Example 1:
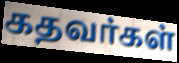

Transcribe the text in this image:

கதவர்கள்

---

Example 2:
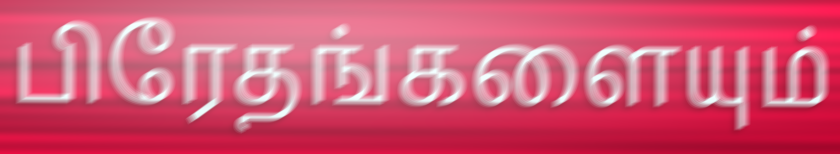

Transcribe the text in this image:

பிரேதங்களையும்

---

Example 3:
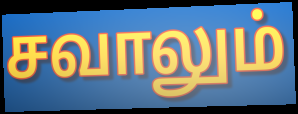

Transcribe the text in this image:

சவாலும்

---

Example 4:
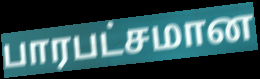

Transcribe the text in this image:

பாரபட்சமான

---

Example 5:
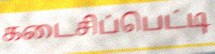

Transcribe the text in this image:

கடைசிப்பெட்டி